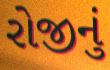
રોજીનું